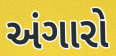
અંગારો